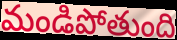
మండిపోతుంది